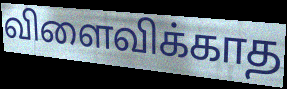
விளைவிக்காத